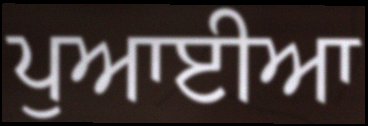
ਪੁਆਈਆ